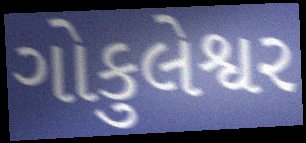
ગોકુલેશ્વર